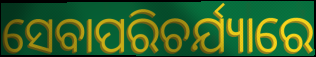
ସେବାପରିଚର୍ଯ୍ୟାରେ